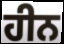
ਹੀਨ